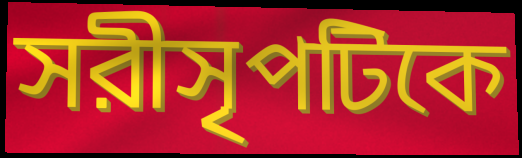
সরীসৃপটিকে